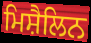
ਮਿਸ਼ੈਲਿਨ